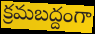
క్రమబద్దంగా